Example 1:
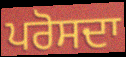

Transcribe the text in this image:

ਪਰੋਸਦਾ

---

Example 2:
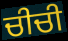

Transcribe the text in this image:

ਚੀਚੀ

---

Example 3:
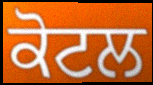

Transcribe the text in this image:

ਕੋਟਲ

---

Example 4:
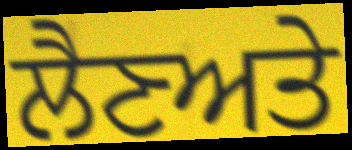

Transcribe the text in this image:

ਲੈਣਅਤੇ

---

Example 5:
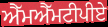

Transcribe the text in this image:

ਐੱਮਐੱਮਟੀਪੀਏ